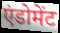
एंडोमेंट